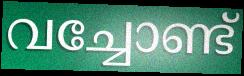
വച്ചോണ്ട്